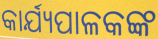
କାର୍ଯ୍ୟପାଳକଙ୍କ